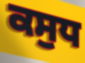
ਕਸੁਧ